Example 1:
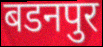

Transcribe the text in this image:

बडनपुर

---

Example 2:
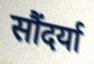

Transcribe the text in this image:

सौंदर्या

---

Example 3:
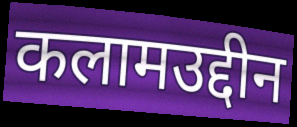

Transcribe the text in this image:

कलामउद्दीन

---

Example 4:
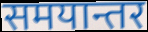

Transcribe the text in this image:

समयान्तर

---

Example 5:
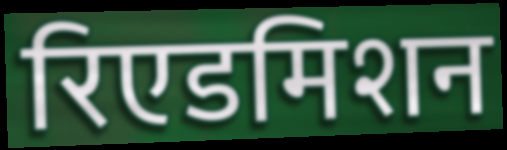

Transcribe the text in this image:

रिएडमिशन